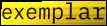
exemplar